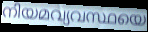
നിയമവ്യവസ്ഥയെ